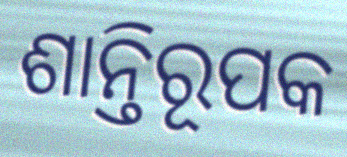
ଶାନ୍ତିରୂପକ